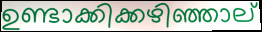
ഉണ്ടാക്കിക്കഴിഞ്ഞാല്